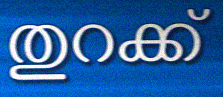
തുറക്ക്